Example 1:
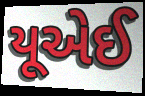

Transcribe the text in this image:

યૂએઈ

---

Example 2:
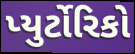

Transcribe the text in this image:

પ્યુર્ટોરિકો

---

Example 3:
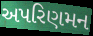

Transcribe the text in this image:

અપરિણમન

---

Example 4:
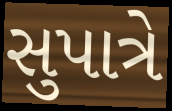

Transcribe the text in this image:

સુપાત્રે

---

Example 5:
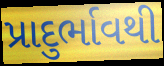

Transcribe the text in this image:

પ્રાદુર્ભાવથી